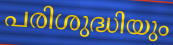
പരിശുദ്ധിയും